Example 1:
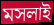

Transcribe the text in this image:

মসলাই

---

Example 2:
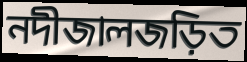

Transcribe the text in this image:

নদীজালজড়িত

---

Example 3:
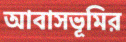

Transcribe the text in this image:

আবাসভূমির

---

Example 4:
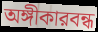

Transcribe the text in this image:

অঙ্গীকারবন্ধ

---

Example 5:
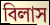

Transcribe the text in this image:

বিলাস